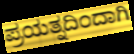
ಪ್ರಯತ್ನದಿಂದಾಗಿ